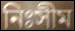
নিঃসীম